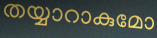
തയ്യാറാകുമോ